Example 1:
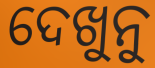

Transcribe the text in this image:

ଦେଖୁନୁ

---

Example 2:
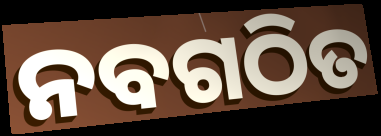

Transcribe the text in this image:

ନବଗଠିତ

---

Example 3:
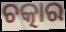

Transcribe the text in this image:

ଚତ୍କାର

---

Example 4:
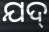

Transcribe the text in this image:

ଯଦ୍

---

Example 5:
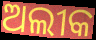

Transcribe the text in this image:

ଅଲୀକ